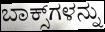
ಬಾಕ್ಸ್‌ಗಳನ್ನು